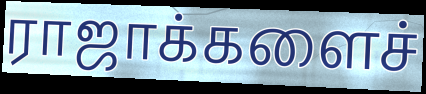
ராஜாக்களைச்